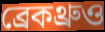
ব্রেকথ্রুও